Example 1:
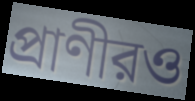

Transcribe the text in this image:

প্রাণীরও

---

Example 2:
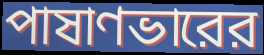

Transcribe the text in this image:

পাষাণভারের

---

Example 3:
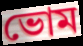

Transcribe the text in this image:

ভোম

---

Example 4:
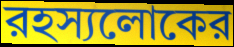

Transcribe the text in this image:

রহস্যলোকের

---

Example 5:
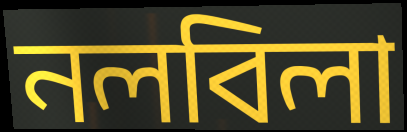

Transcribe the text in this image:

নলবিলা